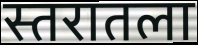
स्तरातला